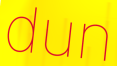
dun